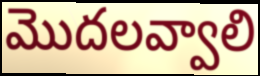
మొదలవ్వాలి